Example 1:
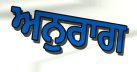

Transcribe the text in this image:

ਅਨੁਰਾਗ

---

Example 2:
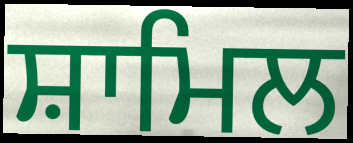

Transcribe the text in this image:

ਸ਼ਾਮਿਲ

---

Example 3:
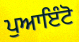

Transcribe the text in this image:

ਪੁਆਇੰਟੋ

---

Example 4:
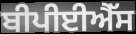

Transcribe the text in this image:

ਬੀਪੀਈਐੱਸ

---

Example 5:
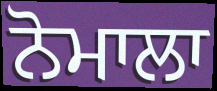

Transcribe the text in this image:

ਨੋਮਾਲਾ